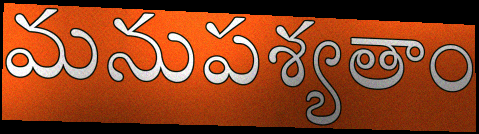
మనుపశ్యతాం